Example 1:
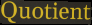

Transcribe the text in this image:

Quotient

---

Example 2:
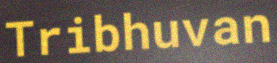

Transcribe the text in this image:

Tribhuvan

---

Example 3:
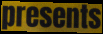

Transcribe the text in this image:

presents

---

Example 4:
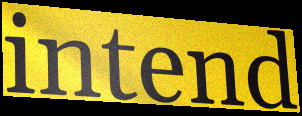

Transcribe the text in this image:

intend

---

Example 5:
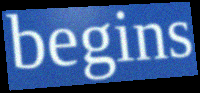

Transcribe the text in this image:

begins